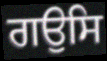
ਗਉਸਿ